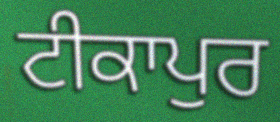
ਟੀਕਾਪੁਰ